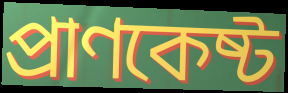
প্রাণকেষ্ট